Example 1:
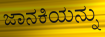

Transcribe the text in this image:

ಜಾನಕಿಯನ್ನು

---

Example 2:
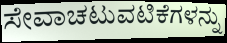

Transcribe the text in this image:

ಸೇವಾಚಟುವಟಿಕೆಗಳನ್ನು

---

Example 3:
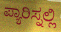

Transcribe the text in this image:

ಪ್ಯಾರಿಸ್ನಲ್ಲಿ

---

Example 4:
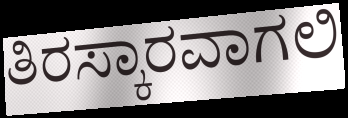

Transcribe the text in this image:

ತಿರಸ್ಕಾರವಾಗಲಿ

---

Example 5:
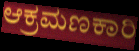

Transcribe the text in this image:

ಆಕ್ರಮಣಕಾರಿ